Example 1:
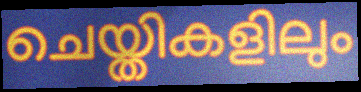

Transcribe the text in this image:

ചെയ്തികളിലും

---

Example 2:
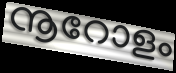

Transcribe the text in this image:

നൂറോളം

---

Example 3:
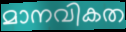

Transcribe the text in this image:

മാനവികത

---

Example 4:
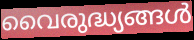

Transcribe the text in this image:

വൈരുദ്ധ്യങ്ങൾ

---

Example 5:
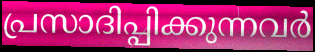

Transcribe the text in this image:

പ്രസാദിപ്പിക്കുന്നവർ